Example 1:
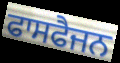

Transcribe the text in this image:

ਫਾਸਫੈਜਨ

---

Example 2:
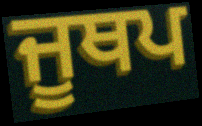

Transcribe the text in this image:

ਜੂਥਪ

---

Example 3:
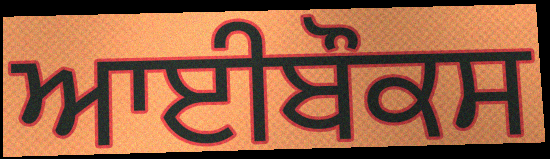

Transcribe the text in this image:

ਆਈਬੌਕਸ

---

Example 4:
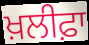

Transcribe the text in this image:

ਖ਼ਲੀਫ਼ਾ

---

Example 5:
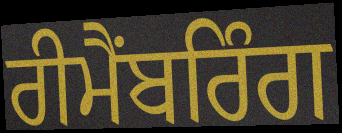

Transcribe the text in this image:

ਰੀਮੈਂਬਰਿੰਗ